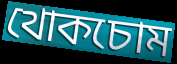
থোকচোম